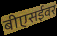
बीएसईवर